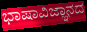
ಭಾಷಾವಿಜ್ಞಾನದ